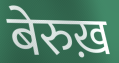
बेरुख़